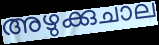
അഴുക്കുചാല